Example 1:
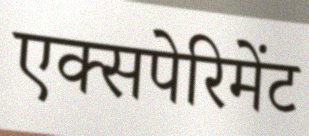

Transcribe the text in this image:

एक्सपेरिमेंट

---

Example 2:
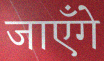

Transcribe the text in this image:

जाएँगे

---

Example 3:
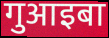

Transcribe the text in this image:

गुआइबा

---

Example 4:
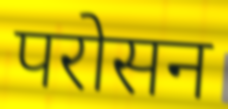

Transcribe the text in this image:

परोसन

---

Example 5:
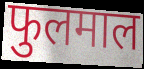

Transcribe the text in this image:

फुलमाल